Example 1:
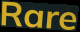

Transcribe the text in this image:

Rare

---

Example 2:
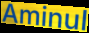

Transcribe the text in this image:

Aminul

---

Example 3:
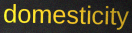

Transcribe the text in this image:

domesticity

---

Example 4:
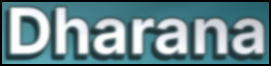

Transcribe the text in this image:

Dharana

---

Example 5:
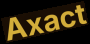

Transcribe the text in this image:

Axact